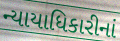
ન્યાયાધિકારીનાં